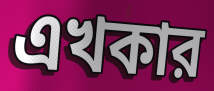
এখকার